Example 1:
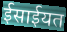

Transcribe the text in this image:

ईसाईयत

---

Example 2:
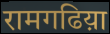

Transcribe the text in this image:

रामगढिय़ा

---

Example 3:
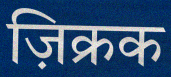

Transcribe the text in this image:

ज़िक्रक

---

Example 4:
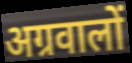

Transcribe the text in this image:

अग्रवालों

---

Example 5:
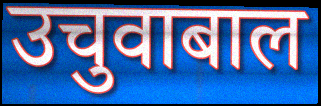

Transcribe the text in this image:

उचुवाबाल